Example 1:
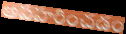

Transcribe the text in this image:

అపహరించడం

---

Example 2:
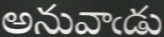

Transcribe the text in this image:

అనువాఁడు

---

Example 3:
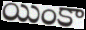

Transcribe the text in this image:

యింకా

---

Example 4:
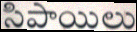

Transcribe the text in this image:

సిపాయిలు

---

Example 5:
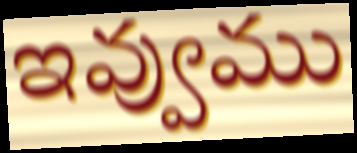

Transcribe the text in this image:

ఇవ్వుము